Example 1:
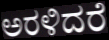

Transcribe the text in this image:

ಅರಳಿದರೆ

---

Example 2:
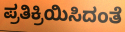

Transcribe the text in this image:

ಪ್ರತಿಕ್ರಿಯಿಸಿದಂತೆ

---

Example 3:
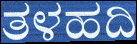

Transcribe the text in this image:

ತಳಹದಿ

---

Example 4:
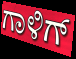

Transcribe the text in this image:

ಗಾಳಿಗ್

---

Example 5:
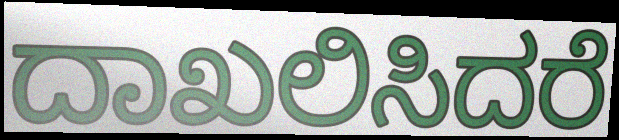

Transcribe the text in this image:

ದಾಖಲಿಸಿದರೆ